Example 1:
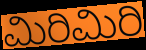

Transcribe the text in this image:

ಮಿರಿಮಿರಿ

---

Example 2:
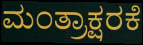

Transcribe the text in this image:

ಮಂತ್ರಾಕ್ಷರಕೆ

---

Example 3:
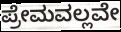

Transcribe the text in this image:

ಪ್ರೇಮವಲ್ಲವೇ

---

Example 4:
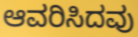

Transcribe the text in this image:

ಆವರಿಸಿದವು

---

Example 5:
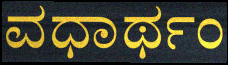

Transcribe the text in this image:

ವಧಾರ್ಥಂ